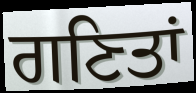
ਗਣਿਤਾਂ